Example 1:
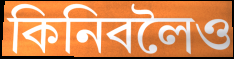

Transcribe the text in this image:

কিনিবলৈও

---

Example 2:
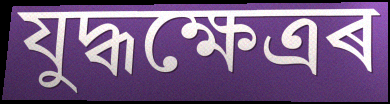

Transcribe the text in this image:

যুদ্ধক্ষেত্ৰৰ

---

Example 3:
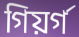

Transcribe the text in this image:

গিয়ৰ্গ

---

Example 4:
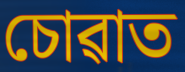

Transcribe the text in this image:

চোৱাত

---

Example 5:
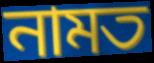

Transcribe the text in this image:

নামত